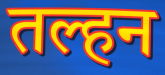
तल्हन